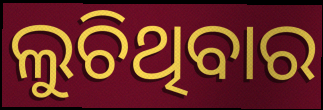
ଲୁଚିଥିବାର